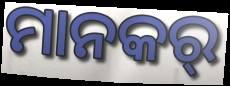
ମାନକର୍